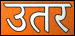
उतर